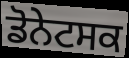
ਡੋਨੇਟਸਕ